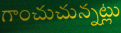
గాంచుచున్నట్లు